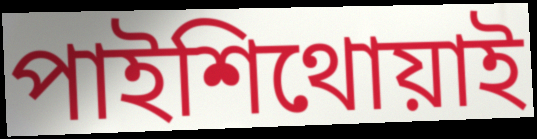
পাইশিথোয়াই